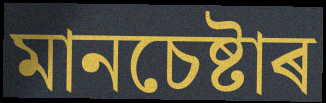
মানচেষ্টাৰ